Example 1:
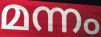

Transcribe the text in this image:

മന്നം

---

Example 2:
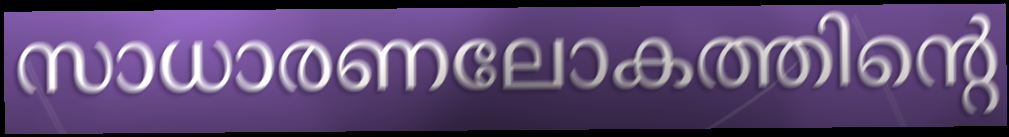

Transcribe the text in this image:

സാധാരണലോകത്തിന്റെ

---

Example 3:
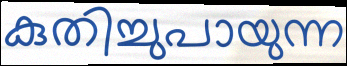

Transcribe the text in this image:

കുതിച്ചുപായുന്ന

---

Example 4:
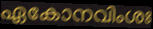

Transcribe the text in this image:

ഏകോനവിംശഃ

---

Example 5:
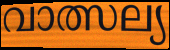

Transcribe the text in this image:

വാത്സല്യ